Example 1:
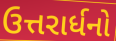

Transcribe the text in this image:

ઉત્તરાર્ધનો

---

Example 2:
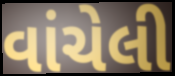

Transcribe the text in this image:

વાંચેલી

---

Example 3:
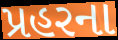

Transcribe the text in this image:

પ્રહરના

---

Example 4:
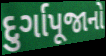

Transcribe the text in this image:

દુર્ગાપૂજાનો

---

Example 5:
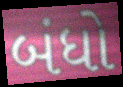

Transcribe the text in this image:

બંધો